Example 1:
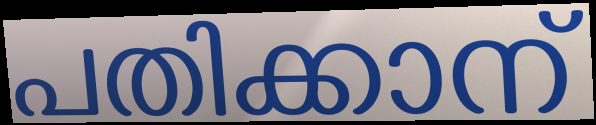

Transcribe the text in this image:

പതിക്കാന്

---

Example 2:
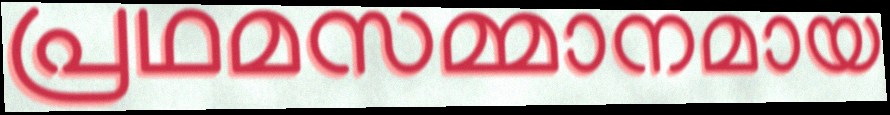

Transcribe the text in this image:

പ്രഥമസമ്മാനമായ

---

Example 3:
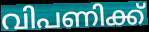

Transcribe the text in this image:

വിപണിക്ക്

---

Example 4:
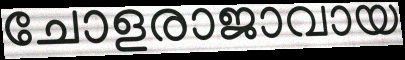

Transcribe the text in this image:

ചോളരാജാവായ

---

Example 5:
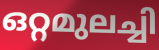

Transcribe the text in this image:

ഒറ്റമുലച്ചി